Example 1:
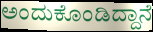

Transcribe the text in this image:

ಅಂದುಕೊಂಡಿದ್ದಾನೆ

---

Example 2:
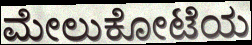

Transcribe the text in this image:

ಮೇಲುಕೋಟೆಯ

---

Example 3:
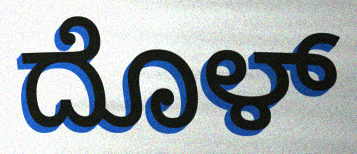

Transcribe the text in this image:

ದೊಳ್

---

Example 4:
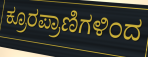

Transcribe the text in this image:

ಕ್ರೂರಪ್ರಾಣಿಗಳಿಂದ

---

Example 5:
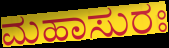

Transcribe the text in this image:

ಮಹಾಸುರಃ